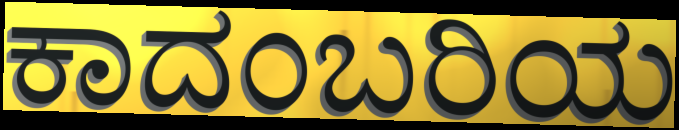
ಕಾದಂಬರಿಯ